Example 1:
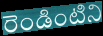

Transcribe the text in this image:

రెండింటిని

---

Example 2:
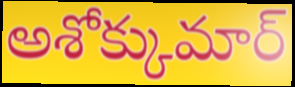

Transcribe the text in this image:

అశోక్కుమార్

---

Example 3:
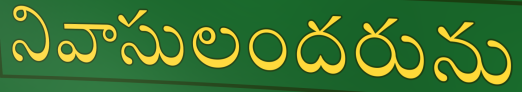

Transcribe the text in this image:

నివాసులందరును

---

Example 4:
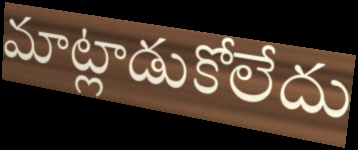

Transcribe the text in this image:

మాట్లాడుకోలేదు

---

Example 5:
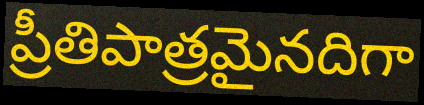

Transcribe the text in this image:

ప్రీతిపాత్రమైనదిగా